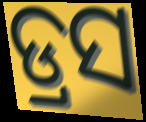
ଡ୍ରସ